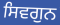
ਸਿਵਗੁਨ